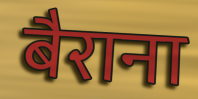
बैराना